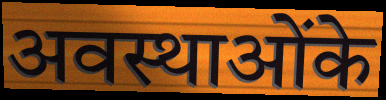
अवस्थाओंके